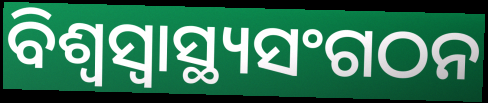
ବିଶ୍ଵସ୍ଵାସ୍ଥ୍ୟସଂଗଠନ